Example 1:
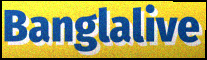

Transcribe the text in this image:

Banglalive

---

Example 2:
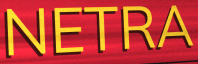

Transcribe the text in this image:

NETRA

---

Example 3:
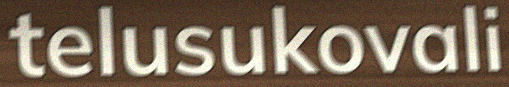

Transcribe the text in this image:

telusukovali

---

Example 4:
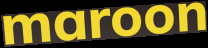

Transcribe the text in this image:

maroon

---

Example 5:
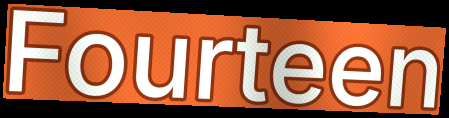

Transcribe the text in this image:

Fourteen